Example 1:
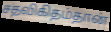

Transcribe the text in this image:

சதவிகிதம்தான்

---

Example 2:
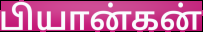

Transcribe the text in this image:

பியான்கன்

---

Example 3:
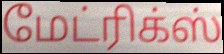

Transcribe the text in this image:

மேட்ரிக்ஸ்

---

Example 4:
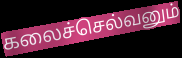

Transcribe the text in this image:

கலைச்செல்வனும்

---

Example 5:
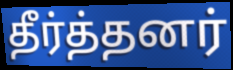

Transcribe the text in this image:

தீர்த்தனர்